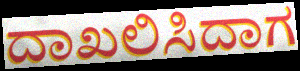
ದಾಖಲಿಸಿದಾಗ